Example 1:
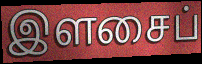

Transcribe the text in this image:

இளசைப்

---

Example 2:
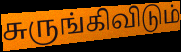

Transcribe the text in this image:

சுருங்கிவிடும்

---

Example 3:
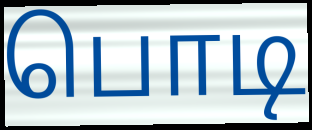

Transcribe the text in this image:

பொடி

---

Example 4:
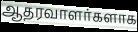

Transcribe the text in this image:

ஆதரவாளர்களாக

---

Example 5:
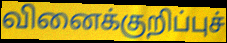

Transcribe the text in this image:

வினைக்குறிப்புச்